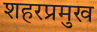
शहरप्रमुख